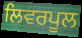
ਲਿਵਰਪੂਲ